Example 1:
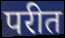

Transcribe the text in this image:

परीत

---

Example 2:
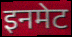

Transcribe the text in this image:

इनमेट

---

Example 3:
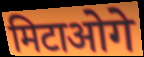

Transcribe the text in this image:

मिटाओगे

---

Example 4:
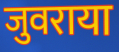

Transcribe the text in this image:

जुवराया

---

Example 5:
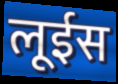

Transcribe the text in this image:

लूईस